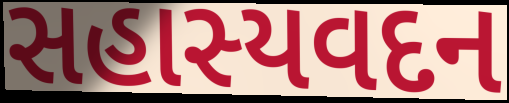
સહાસ્યવદન